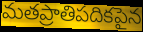
మతప్రాతిపదికపైన